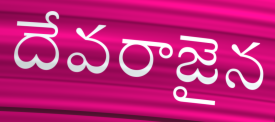
దేవరాజైన